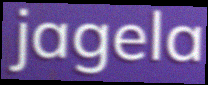
jagela